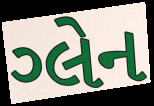
ગ્લેન